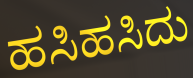
ಹಸಿಹಸಿದು